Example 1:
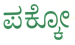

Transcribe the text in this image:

ಪಕ್ಕೋ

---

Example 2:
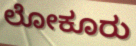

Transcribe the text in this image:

ಲೋಕೂರು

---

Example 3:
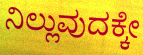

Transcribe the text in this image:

ನಿಲ್ಲುವುದಕ್ಕೇ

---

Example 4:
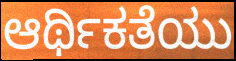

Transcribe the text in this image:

ಆರ್ಥಿಕತೆಯು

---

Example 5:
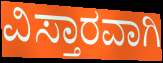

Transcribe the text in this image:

ವಿಸ್ತಾರವಾಗಿ